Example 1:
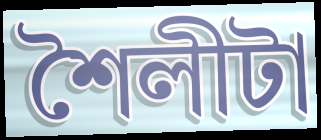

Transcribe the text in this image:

শৈলীটা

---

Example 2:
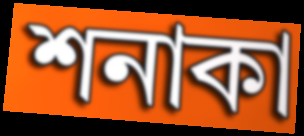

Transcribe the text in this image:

শনাকা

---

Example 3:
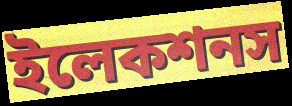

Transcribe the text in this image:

ইলেকশনস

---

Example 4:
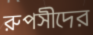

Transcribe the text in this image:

রুপসীদের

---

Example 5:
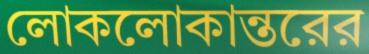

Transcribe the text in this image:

লোকলোকান্তরের